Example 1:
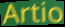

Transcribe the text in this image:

Artio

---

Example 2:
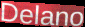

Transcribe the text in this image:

Delano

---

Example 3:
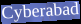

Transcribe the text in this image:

Cyberabad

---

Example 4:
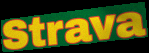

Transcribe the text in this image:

Strava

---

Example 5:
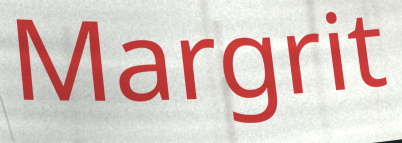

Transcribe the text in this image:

Margrit